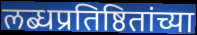
लब्धप्रतिष्ठितांच्या